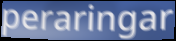
peraringar